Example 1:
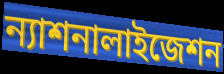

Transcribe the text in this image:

ন্যাশনালাইজেশন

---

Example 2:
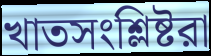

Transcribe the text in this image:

খাতসংশ্লিষ্টরা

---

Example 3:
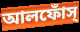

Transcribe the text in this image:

আলফোঁস্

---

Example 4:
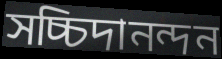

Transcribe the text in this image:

সচ্চিদানন্দন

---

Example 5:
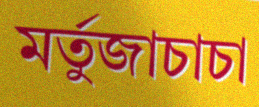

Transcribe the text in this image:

মর্তুজাচাচা